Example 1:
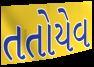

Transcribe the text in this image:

તતોયેવ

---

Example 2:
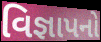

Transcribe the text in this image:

વિજ્ઞાપનો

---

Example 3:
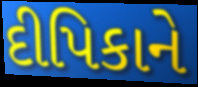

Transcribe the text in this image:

દીપિકાને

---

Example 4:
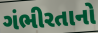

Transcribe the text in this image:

ગંભીરતાનો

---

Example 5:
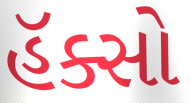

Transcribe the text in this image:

હૅક્સો